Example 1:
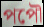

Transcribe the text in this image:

পপৌ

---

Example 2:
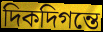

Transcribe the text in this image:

দিকদিগন্তে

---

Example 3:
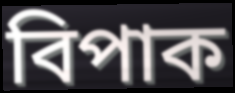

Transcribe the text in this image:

বিপাক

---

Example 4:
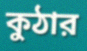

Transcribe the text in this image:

কুঠার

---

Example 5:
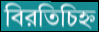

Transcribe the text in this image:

বিরতিচিহ্ন